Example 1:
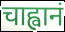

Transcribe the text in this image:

चाह्वानं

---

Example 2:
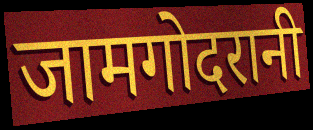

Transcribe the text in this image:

जामगोदरानी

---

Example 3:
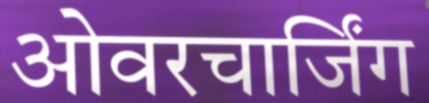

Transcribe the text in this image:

ओवरचार्जिंग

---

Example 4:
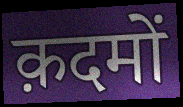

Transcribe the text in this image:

क़दमों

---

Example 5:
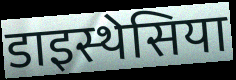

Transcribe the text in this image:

डाइस्थेसिया